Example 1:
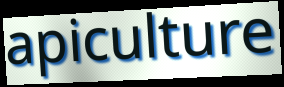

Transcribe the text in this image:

apiculture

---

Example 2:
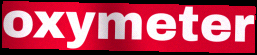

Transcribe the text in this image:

oxymeter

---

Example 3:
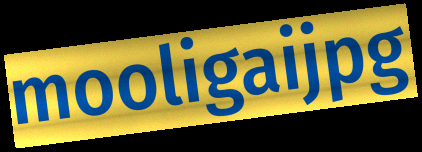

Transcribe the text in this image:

mooligaijpg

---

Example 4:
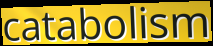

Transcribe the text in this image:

catabolism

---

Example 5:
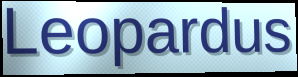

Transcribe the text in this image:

Leopardus